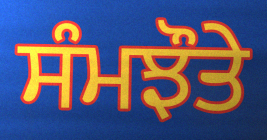
ਸੰਮਝੌਤੇ